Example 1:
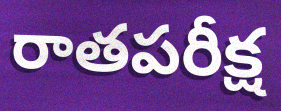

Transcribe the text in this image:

రాతపరీక్ష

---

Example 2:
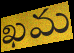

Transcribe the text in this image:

ఖమ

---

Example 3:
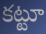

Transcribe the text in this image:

కట్టూ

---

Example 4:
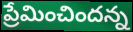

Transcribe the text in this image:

ప్రేమించిందన్న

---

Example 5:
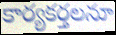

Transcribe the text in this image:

కార్యకర్తలనూ